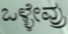
ಒಳ್ಳೇವ್ರು